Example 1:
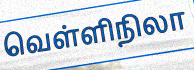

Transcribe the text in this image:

வெள்ளிநிலா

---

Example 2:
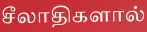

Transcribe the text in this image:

சீலாதிகளால்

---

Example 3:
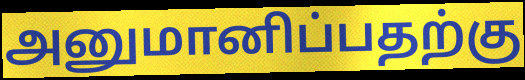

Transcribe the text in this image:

அனுமானிப்பதற்கு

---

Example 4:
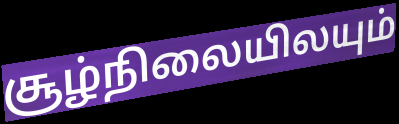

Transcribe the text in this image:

சூழ்நிலையிலயும்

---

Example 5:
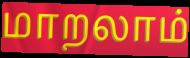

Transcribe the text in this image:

மாறலாம்